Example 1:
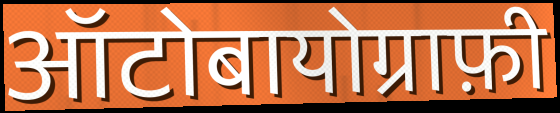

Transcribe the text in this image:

ऑटोबायोग्राफ़ी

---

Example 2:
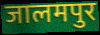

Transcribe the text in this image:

जालमपुर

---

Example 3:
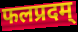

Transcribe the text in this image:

फलप्रदम्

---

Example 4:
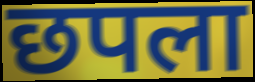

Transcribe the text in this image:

छपला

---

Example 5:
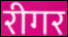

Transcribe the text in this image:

रीगर